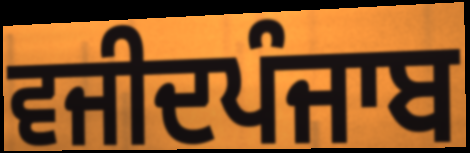
ਵਜੀਦਪੰਜਾਬ